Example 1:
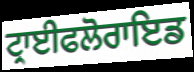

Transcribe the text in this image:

ਟ੍ਰਾਈਫਲੋਰਾਇਡ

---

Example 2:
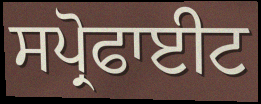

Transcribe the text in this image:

ਸਪ੍ਰੋਫਾਈਟ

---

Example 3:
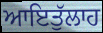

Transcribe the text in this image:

ਆਇਤੁੱਲਾਹ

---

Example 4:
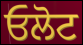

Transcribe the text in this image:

ਓਲੋਟ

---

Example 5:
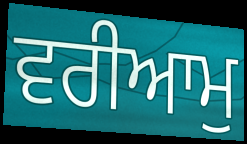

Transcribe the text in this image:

ਵਰੀਆਮੁ